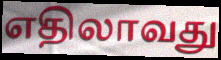
எதிலாவது